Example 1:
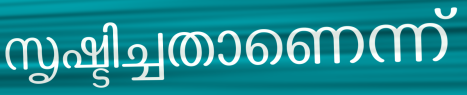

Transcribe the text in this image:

സൃഷ്ടിച്ചതാണെന്ന്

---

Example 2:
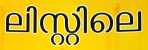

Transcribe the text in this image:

ലിസ്റ്റിലെ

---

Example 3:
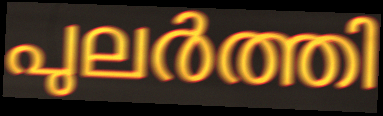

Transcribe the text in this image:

പുലർത്തി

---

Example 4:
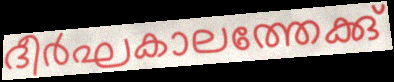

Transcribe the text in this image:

ദീർഘകാലത്തേക്കു്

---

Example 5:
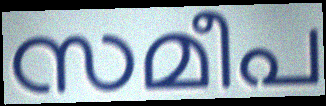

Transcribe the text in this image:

സമീപ